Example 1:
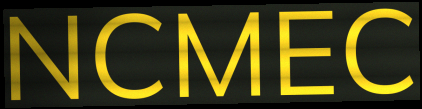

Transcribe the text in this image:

NCMEC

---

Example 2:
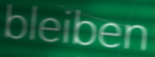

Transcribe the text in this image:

bleiben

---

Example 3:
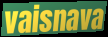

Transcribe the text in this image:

vaisnava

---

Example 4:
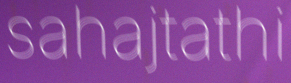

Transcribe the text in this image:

sahajtathi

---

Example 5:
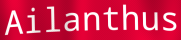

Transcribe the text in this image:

Ailanthus